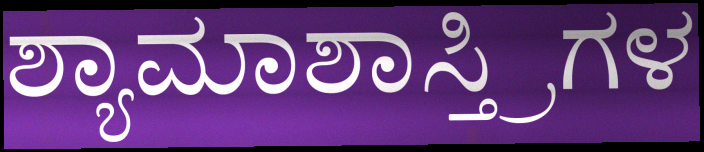
ಶ್ಯಾಮಾಶಾಸ್ತ್ರಿಗಳ